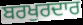
ਬਰਖੁਰਦਾਰ